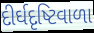
દીર્ઘદૃષ્ટિવાળા